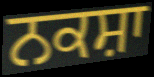
ਨਕਸ਼ਾ